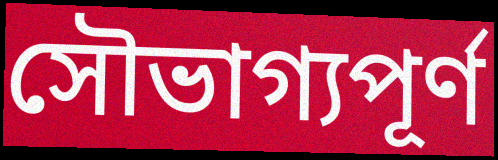
সৌভাগ্যপূর্ণ